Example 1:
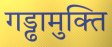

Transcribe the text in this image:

गड्ढामुक्ति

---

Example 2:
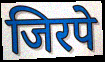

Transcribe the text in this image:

जिरपे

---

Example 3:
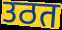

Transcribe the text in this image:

उठत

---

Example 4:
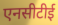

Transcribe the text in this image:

एनसीटीई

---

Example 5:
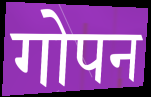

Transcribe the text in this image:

गोपन